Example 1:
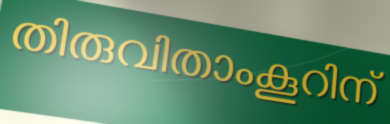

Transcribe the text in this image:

തിരുവിതാംകൂറിന്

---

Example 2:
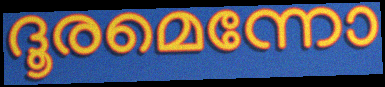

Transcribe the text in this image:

ദൂരമെന്നോ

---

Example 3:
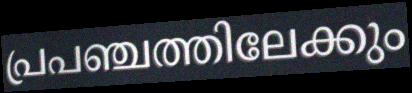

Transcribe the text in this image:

പ്രപഞ്ചത്തിലേക്കും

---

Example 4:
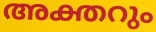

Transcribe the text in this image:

അക്തറും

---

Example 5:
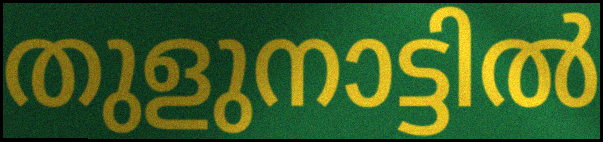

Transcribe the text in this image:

തുളുനാട്ടിൽ